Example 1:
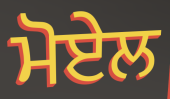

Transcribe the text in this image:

ਮੋਏਲ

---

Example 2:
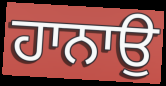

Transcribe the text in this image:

ਹਾਨਾਉ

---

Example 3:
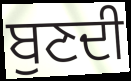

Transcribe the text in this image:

ਬੁਣਦੀ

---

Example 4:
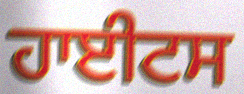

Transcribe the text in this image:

ਹਾਈਟਸ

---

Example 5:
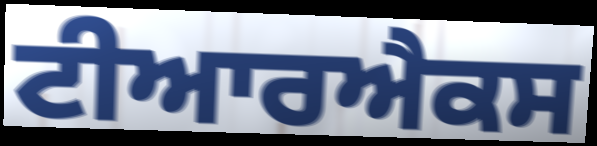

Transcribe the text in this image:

ਟੀਆਰਐਕਸ